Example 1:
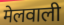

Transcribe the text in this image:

मेलवाली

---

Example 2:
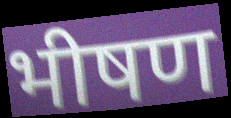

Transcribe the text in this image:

भीषण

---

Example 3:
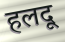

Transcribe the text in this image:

हलदू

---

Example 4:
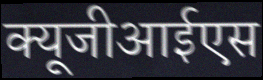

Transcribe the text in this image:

क्यूजीआईएस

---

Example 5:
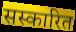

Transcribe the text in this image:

सस्कारित